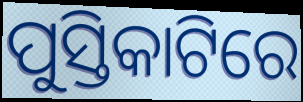
ପୁସ୍ତିକାଟିରେ